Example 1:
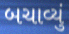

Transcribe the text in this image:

બચાવ્યું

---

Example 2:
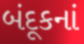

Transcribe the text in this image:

બંદૂકનાં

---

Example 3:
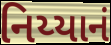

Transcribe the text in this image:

નિય્યાનં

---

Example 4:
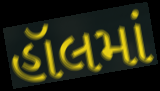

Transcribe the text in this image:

હૉલમાં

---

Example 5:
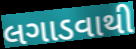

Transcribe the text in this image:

લગાડવાથી